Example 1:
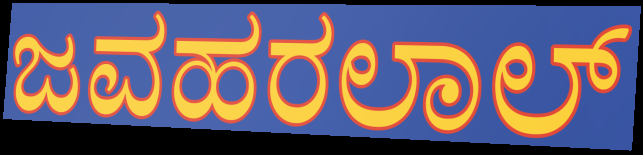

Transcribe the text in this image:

ಜವಹರಲಾಲ್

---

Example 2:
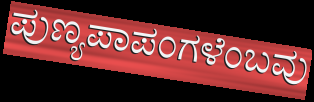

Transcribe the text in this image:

ಪುಣ್ಯಪಾಪಂಗಳೆಂಬವು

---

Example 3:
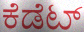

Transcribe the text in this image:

ಕೆಡೆಟ್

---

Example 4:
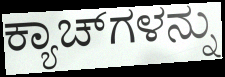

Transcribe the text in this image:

ಕ್ಯಾಚ್‌ಗಳನ್ನು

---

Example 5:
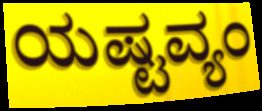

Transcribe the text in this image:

ಯಷ್ಟವ್ಯಂ